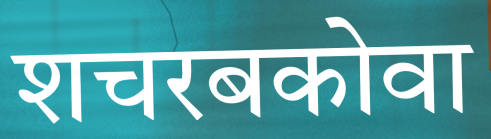
शचरबकोवा